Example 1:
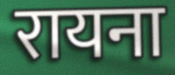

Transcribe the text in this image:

रायना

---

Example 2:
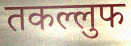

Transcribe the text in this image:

तकल्लुफ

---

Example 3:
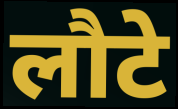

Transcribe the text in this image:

लौटे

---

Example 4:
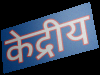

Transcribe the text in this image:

केद्रीय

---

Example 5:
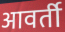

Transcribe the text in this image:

आवर्ती